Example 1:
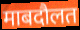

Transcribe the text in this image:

माबदौलत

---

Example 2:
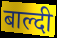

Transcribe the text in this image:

बाल्दी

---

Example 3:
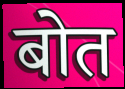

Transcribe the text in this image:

बोत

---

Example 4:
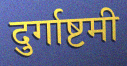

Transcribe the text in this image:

दुर्गाष्टमी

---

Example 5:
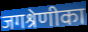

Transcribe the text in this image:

जगश्रेणीका